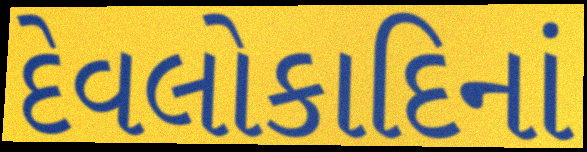
દેવલોકાદિનાં